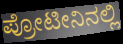
ಪ್ರೋಟೀನಿನಲ್ಲಿ